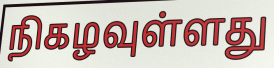
நிகழவுள்ளது